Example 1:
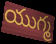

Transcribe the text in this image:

యుగ్మ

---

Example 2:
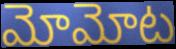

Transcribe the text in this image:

మోమోట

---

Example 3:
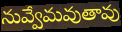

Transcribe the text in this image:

నువ్వేమవుతావు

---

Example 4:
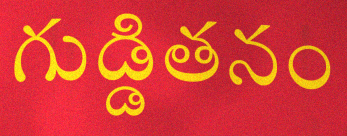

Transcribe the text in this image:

గుడ్డితనం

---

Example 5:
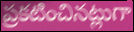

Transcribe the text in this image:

ప్రకటించినట్లుగా